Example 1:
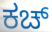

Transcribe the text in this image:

ಕಚ್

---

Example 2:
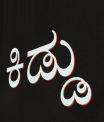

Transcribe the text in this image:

ಕಿಡ್ಡು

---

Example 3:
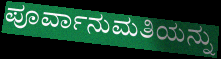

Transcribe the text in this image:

ಪೂರ್ವಾನುಮತಿಯನ್ನು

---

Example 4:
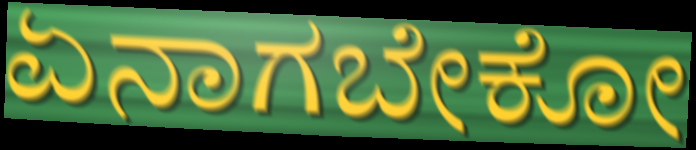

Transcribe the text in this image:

ಏನಾಗಬೇಕೋ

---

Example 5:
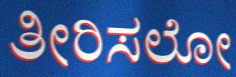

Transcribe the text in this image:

ತೀರಿಸಲೋ